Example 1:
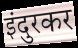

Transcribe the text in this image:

इंदुरकर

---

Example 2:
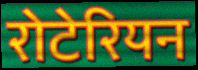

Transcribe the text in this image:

रोटेरियन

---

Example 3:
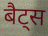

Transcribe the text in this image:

बैट्स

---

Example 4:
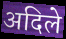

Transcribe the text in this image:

अदिले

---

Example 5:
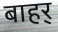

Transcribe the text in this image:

बाहर्